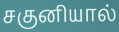
சகுனியால்